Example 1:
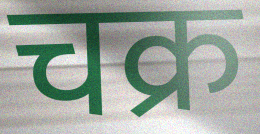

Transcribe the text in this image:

चक्र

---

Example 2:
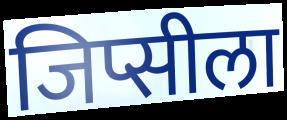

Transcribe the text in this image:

जिप्सीला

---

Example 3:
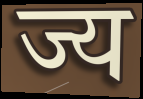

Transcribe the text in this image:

ज्य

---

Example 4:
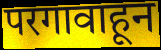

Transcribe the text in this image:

परगावाहून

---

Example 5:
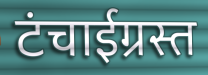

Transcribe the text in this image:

टंचाईग्रस्त